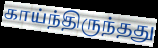
காய்ந்திருந்தது